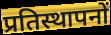
प्रतिस्थापनों